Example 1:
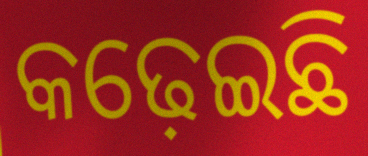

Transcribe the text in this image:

କଢ଼େଇଛି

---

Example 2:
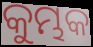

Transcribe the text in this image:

କୁମ୍ଭକ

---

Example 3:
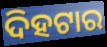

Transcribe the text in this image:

ଦିହଟାର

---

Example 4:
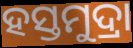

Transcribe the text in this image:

ହସ୍ତମୁଦ୍ରା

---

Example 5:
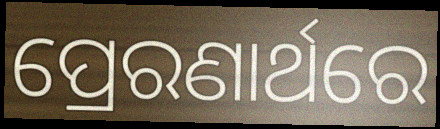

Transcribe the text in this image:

ପ୍ରେରଣାର୍ଥରେ